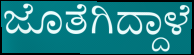
ಜೊತೆಗಿದ್ದಾಳೆ